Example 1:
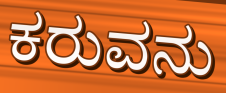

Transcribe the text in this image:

ಕರುವನು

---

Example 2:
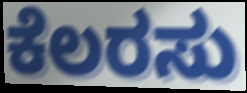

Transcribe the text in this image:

ಕೆಲರಸು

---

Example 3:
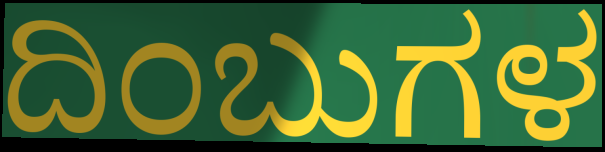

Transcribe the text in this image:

ದಿಂಬುಗಳ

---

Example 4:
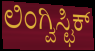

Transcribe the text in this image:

ಲಿಂಗ್ವಿಸ್ಟಿಕ್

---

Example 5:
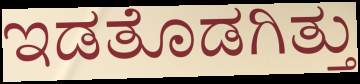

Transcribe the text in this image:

ಇಡತೊಡಗಿತ್ತು